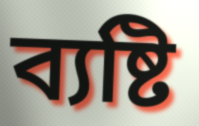
ব্যষ্টি